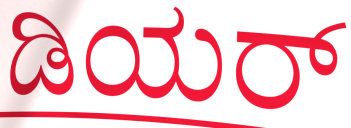
ಡಿಯರ್